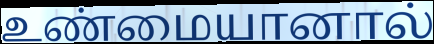
உண்மையானால்